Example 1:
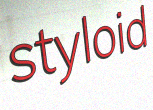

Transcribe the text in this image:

styloid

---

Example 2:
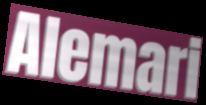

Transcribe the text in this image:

Alemari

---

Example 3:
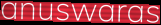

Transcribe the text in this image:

anuswaras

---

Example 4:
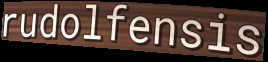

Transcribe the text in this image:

rudolfensis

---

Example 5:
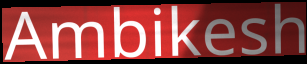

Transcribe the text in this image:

Ambikesh